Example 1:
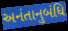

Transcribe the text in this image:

અનંતાનુબંધિ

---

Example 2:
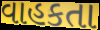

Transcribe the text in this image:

વાહકતા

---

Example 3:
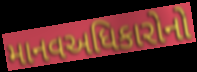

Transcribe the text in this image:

માનવઅધિકારોનો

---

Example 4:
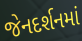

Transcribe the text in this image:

જેનદર્શનમાં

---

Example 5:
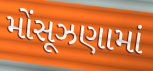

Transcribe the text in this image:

મોંસૂઝણામાં